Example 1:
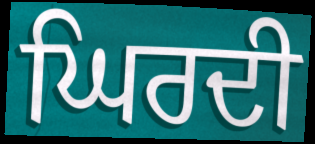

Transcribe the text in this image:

ਘਿਰਦੀ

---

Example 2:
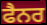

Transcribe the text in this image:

ਫੈਨਰ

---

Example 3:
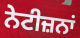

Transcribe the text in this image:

ਨੇਟੀਜ਼ਨਾਂ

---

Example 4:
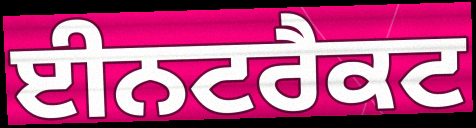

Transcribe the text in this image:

ਈਨਟਰੈਕਟ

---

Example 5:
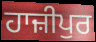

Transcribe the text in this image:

ਹਾਜ਼ੀਪੁਰ